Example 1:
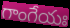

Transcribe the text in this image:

గాంగేయః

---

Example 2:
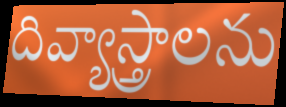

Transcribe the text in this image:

దివ్యాస్త్రాలను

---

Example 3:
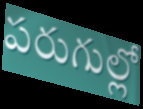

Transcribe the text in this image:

పరుగుల్లో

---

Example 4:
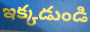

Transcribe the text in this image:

ఇక్కడుండి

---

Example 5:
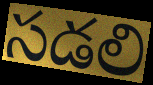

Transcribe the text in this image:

సడలి